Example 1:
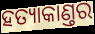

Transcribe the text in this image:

ହତ୍ୟାକାଣ୍ତର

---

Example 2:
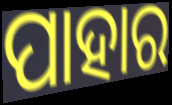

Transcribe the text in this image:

ପାହାର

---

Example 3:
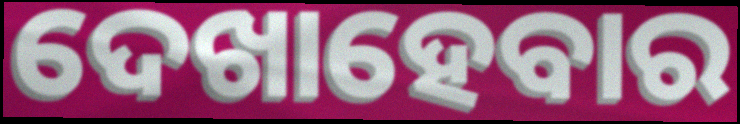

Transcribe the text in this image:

ଦେଖାହେବାର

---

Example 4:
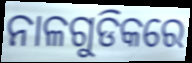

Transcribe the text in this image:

ନାଳଗୁଡିକରେ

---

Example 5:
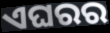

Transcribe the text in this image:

ଏଘରର